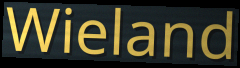
Wieland